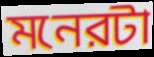
মনেরটা